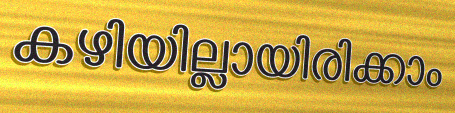
കഴിയില്ലായിരിക്കാം